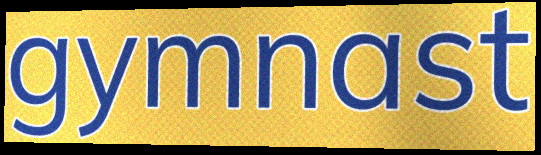
gymnast